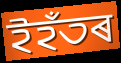
ইহঁতৰ